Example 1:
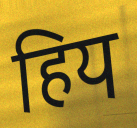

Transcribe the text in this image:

हिय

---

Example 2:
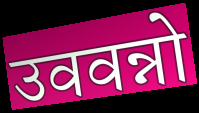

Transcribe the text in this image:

उववन्नो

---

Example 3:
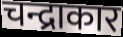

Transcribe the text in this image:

चन्द्राकार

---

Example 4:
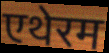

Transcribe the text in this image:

एथेरम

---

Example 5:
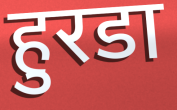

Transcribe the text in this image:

हुरडा